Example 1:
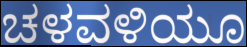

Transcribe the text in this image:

ಚಳವಳಿಯೂ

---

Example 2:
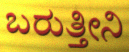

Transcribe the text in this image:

ಬರುತ್ತೀನಿ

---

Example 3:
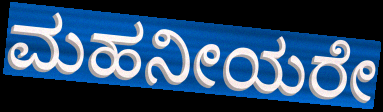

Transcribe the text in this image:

ಮಹನೀಯರೇ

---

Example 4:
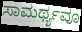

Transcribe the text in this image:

ಸಾಮರ್ಥ್ಯವೂ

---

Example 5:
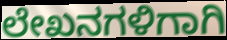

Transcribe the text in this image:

ಲೇಖನಗಳಿಗಾಗಿ